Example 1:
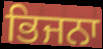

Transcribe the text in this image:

ਭਿਜਨਾ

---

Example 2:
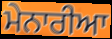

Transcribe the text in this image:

ਮੇਨਾਰੀਆ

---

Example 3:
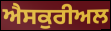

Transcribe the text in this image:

ਐਸਕੁਰੀਅਲ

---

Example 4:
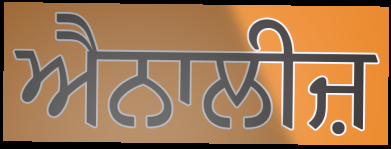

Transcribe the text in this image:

ਐਨਾਲੀਜ਼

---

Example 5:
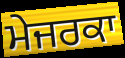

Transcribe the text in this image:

ਮੇਜਰਕਾ